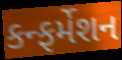
કન્ફર્મેશન